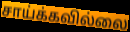
சாய்க்கவில்லை